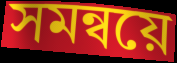
সমন্বয়ে